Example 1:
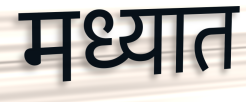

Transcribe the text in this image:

मध्यात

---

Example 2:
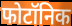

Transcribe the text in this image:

फोटॉनिक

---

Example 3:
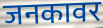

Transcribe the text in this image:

जनकावर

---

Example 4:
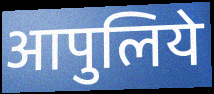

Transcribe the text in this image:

आपुलिये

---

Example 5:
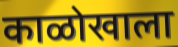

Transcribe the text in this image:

काळोखाला